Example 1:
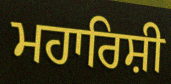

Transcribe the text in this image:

ਮਹਾਰਿਸ਼ੀ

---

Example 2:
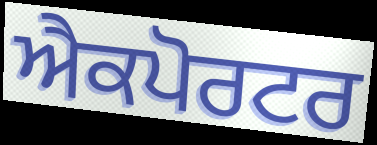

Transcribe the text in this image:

ਐਕਪੋਰਟਰ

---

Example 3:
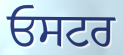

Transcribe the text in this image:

ਓਸਟਰ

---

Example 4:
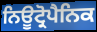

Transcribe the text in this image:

ਨਿਊਟ੍ਰੋਪੈਨਿਕ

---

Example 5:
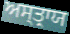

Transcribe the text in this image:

ਅਸ੍ਤ੍ਰਾਯ